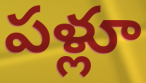
పళ్లూ